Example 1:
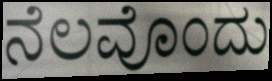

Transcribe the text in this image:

ನೆಲವೊಂದು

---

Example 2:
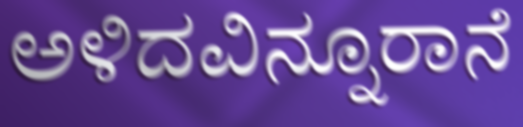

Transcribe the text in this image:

ಅಳಿದವಿನ್ನೂರಾನೆ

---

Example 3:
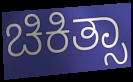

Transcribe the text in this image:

ಚಿಕಿತ್ಸಾ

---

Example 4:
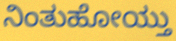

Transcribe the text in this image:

ನಿಂತುಹೋಯ್ತು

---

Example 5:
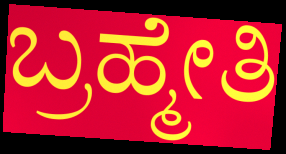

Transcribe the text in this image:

ಬ್ರಹ್ಮೇತಿ